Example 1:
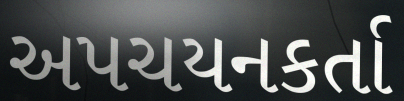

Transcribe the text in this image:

અપચયનકર્તા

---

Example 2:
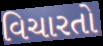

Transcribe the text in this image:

વિચારતો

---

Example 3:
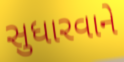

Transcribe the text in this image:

સુધારવાને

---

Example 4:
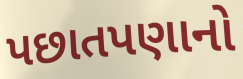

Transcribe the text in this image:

પછાતપણાનો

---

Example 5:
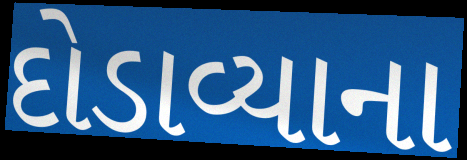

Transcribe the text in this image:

દોડાવ્યાના